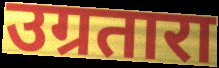
उग्रतारा